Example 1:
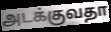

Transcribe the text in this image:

அடக்குவதா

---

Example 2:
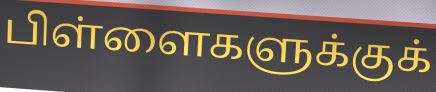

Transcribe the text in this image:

பிள்ளைகளுக்குக்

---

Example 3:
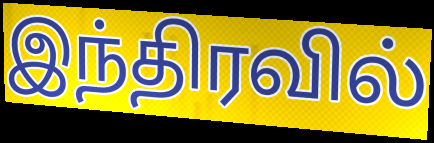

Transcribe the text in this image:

இந்திரவில்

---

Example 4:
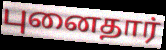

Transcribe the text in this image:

புனைதார்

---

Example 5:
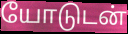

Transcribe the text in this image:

யோடுடன்